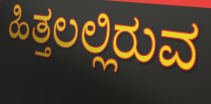
ಹಿತ್ತಲಲ್ಲಿರುವ